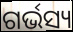
ଗର୍ଭସ୍ୟ